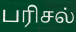
பரிசல்